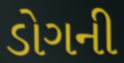
ડોગની